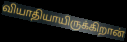
வியாதியாயிருக்கிறான்